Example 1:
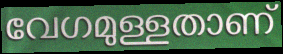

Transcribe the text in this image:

വേഗമുള്ളതാണ്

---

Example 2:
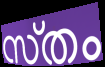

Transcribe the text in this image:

സ്‌തം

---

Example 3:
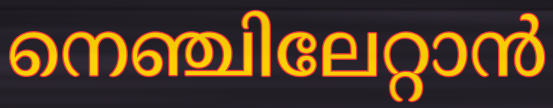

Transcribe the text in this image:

നെഞ്ചിലേറ്റാൻ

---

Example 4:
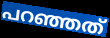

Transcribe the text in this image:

പറഞ്ഞത്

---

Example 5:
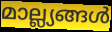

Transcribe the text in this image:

മാല്ല്യങ്ങൾ